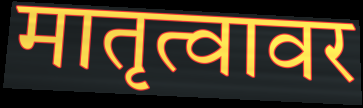
मातृत्वावर